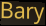
Bary